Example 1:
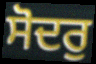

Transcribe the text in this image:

ਸੋਦਰੁ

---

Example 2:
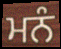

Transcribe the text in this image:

ਮਨੰ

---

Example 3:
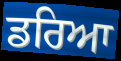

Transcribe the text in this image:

ਡਰਿਆ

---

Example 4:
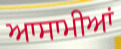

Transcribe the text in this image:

ਆਸਾਮੀਆਂ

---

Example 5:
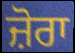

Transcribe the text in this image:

ਜ਼ੋਰਾ